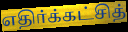
எதிர்க்கட்சித்